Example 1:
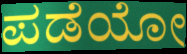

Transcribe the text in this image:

ಪಡೆಯೋ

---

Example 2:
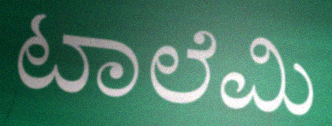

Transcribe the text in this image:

ಟಾಲೆಮಿ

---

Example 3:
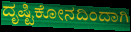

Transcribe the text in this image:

ದೃಷ್ಟಿಕೋನದಿಂದಾಗಿ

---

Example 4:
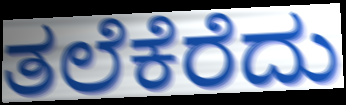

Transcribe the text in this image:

ತಲೆಕೆರೆದು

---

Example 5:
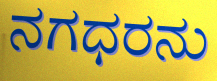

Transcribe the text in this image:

ನಗಧರನು